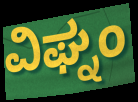
ವಿಘ್ನಂ